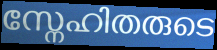
സ്നേഹിതരുടെ